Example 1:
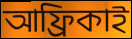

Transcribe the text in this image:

আফ্রিকাই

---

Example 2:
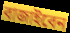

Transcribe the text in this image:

বাজাইবেন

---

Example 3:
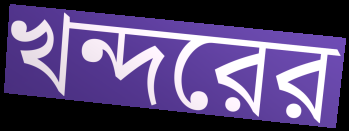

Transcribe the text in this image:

খন্দরের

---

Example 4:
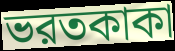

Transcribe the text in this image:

ভরতকাকা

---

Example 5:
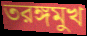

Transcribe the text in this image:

তরঙ্গমুখ